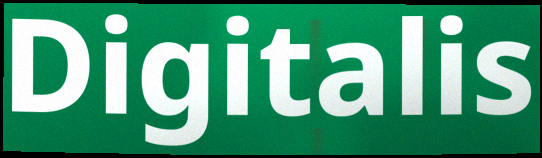
Digitalis